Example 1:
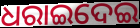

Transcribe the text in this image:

ଧରାଇଦେଇ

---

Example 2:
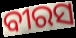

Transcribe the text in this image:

ବୀରସ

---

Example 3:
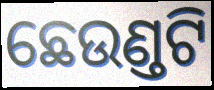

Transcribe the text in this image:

ଛେଉଣ୍ଡଟି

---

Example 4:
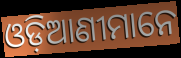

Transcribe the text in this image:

ଓଡ଼ିଆଣୀମାନେ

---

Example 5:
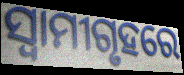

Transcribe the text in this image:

ସ୍ଵାମୀଗୃହରେ